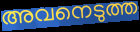
അവനെടുത്ത